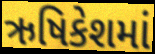
ઋષિકેશમાં